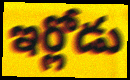
ఇర్లోడు